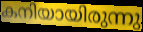
കനിയായിരുന്നു